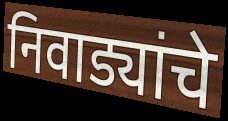
निवाड्यांचे